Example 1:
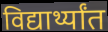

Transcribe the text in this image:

विद्यार्थ्यांत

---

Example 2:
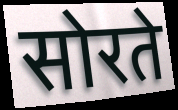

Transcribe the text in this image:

सोरते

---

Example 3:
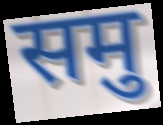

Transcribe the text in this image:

समु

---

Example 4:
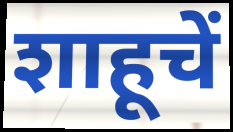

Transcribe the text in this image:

शाहूचें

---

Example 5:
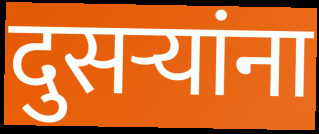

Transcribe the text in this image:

दुसर्‍यांना